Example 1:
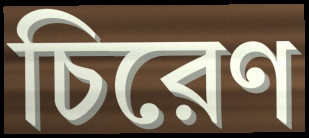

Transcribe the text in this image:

চিরেণ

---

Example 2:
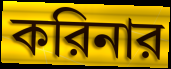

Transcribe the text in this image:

করিনার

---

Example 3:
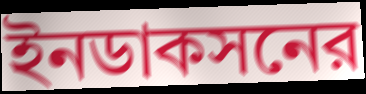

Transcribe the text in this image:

ইনডাকসনের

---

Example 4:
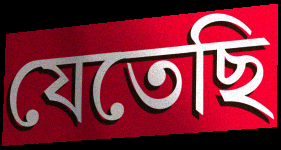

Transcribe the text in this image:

যেতেছি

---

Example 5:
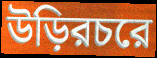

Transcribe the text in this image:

উড়িরচরে